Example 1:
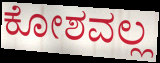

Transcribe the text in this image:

ಕೋಶವಲ್ಲ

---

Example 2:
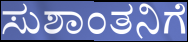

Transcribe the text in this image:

ಸುಶಾಂತನಿಗೆ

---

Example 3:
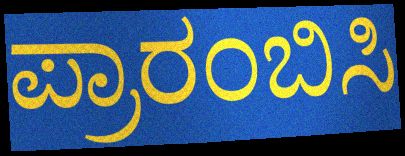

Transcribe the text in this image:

ಪ್ರಾರಂಬಿಸಿ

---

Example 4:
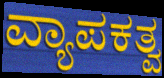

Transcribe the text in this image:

ವ್ಯಾಪಕತ್ವ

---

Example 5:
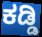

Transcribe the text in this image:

ಕಡ್ಡಿ